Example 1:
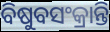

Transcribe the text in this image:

ବିଷୁବସଂକ୍ରାନ୍ତି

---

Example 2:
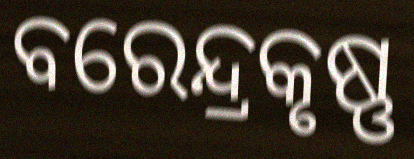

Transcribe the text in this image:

ବରେନ୍ଦ୍ରକୃଷ୍ଣ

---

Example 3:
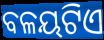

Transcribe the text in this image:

ବଳୟଟିଏ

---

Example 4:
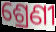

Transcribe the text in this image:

ଶ୍ରେଣୀ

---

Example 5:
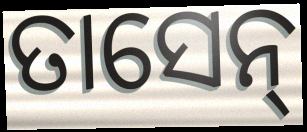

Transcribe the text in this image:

ତାସେନ୍